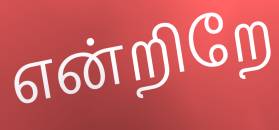
என்றிறே